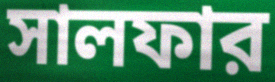
সালফার